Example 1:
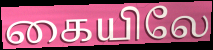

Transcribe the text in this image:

கையிலே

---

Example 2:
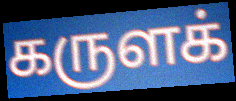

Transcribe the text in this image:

கருளக்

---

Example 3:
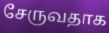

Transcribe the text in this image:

சேருவதாக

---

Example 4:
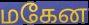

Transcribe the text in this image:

மகேன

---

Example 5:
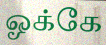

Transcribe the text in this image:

ஓக்கே